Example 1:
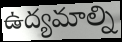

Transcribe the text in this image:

ఉద్యమాల్ని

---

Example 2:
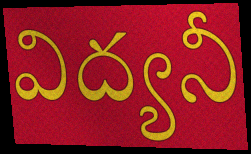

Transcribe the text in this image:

విద్యనీ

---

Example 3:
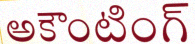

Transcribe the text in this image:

అకౌంటింగ్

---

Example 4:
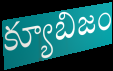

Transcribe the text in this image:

క్యూబిజం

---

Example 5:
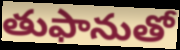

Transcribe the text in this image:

తుఫానుతో